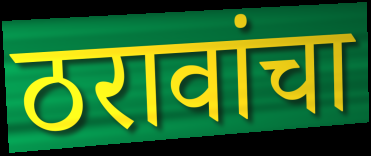
ठरावांचा